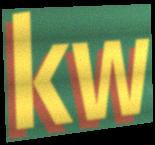
kw